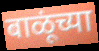
बाळूंच्या